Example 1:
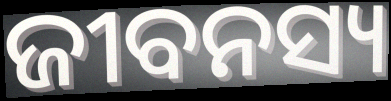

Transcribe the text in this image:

ଜୀବନସ୍ୟ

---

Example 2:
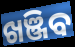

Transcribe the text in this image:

ଖଞ୍ଜିବ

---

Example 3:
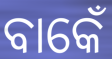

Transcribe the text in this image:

ବାକେଁ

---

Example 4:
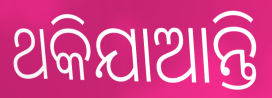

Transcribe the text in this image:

ଥକିଯାଆନ୍ତି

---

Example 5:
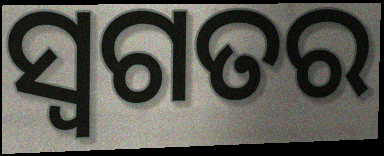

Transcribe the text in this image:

ସ୍ୱଗତର